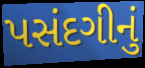
પસંદગીનું